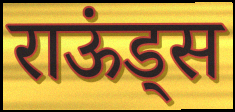
राऊंड्स